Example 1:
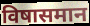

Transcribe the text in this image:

विषासमान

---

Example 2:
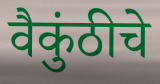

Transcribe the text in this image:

वैकुंठीचे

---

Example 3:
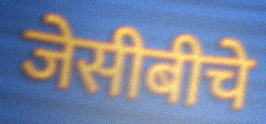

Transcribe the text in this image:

जेसीबीचे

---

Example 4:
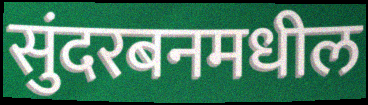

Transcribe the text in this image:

सुंदरबनमधील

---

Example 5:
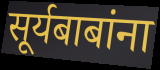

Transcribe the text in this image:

सूर्यबाबांना